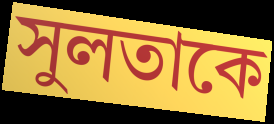
সুলতাকে